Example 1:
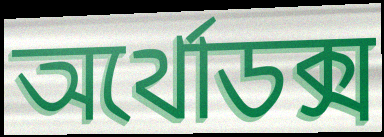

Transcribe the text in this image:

অর্থোডক্স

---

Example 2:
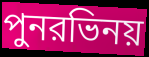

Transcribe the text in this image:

পুনরভিনয়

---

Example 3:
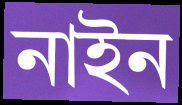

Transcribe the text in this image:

নাইন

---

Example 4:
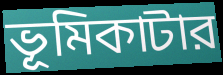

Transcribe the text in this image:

ভূমিকাটার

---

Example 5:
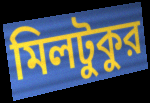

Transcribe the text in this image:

মিলটুকুর